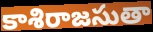
కాశిరాజసుతా